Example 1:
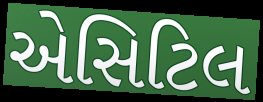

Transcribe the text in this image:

એસિટિલ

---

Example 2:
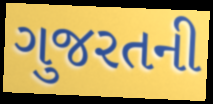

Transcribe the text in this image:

ગુજરતની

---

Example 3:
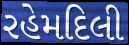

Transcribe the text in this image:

રહેમદિલી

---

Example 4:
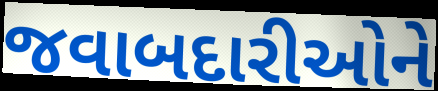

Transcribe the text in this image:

જવાબદારીઓને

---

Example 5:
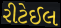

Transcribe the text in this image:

રીટેઈલ